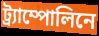
ট্র্যাম্পোলিনে